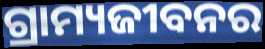
ଗ୍ରାମ୍ୟଜୀବନର